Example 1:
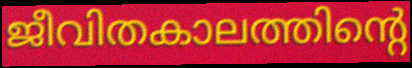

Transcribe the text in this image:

ജീവിതകാലത്തിന്റെ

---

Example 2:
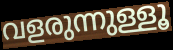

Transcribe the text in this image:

വളരുന്നുള്ളൂ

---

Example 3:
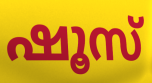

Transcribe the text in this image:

ഷൂസ്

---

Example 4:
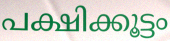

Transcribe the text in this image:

പക്ഷിക്കൂട്ടം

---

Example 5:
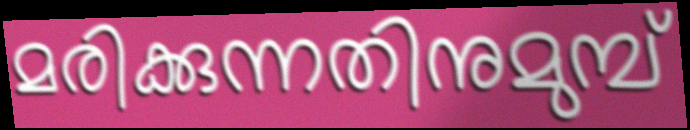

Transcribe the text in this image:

മരിക്കുന്നതിനുമുമ്പ്